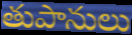
తుపానులు